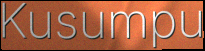
Kusumpu